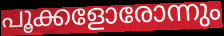
പൂക്കളോരോന്നും